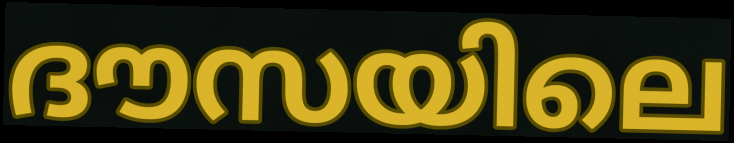
ദൗസയിലെ